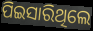
ପିଇସାରିଥିଲେ